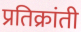
प्रतिक्रांती